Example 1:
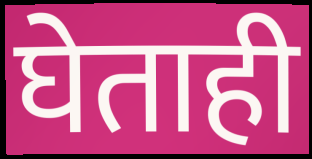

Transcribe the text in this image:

घेताही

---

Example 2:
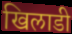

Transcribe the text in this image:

खिलाडी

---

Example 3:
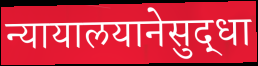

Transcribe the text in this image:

न्यायालयानेसुद्धा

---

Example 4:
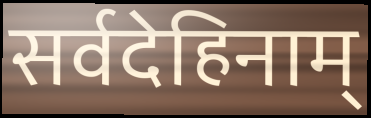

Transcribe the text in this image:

सर्वदेहिनाम्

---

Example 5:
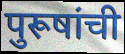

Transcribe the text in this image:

पुरूषांची